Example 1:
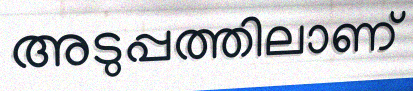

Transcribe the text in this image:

അടുപ്പത്തിലാണ്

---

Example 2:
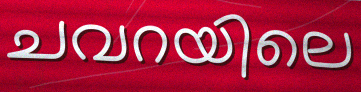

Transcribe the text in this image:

ചവറയിലെ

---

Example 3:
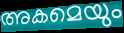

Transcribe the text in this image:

അകമെയും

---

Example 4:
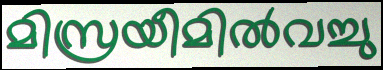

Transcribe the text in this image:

മിസ്രയീമിൽവച്ചു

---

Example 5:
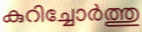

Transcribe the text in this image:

കുറിച്ചോർത്തു